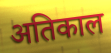
अतिकाल